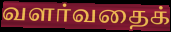
வளர்வதைக்